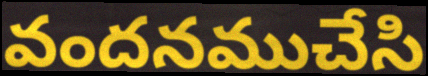
వందనముచేసి